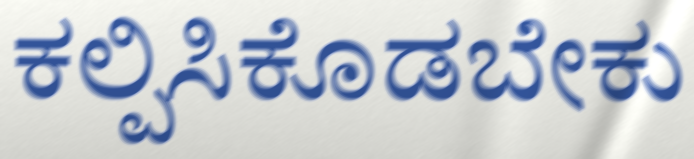
ಕಲ್ಪಿಸಿಕೊಡಬೇಕು